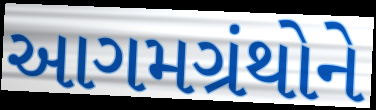
આગમગ્રંથોને